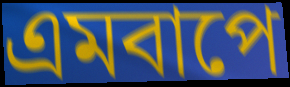
এমবাপে